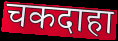
चकदाहा